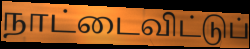
நாட்டைவிட்டுப்